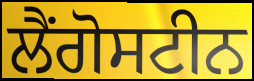
ਲੈਂਗੋਸਟੀਨ